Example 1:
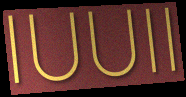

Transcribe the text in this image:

IUUII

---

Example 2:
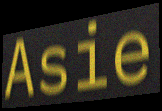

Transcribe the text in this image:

Asie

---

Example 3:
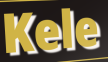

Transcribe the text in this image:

Kele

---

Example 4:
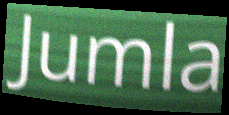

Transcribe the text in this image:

Jumla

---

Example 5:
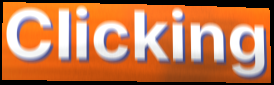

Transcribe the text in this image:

Clicking